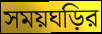
সময়ঘড়ির